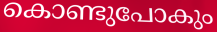
കൊണ്ടുപോകും